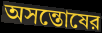
অসন্তোষের